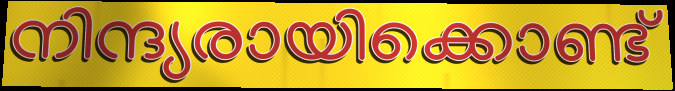
നിന്ദ്യരായിക്കൊണ്ട്